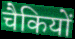
चैकियों